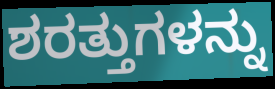
ಶರತ್ತುಗಳನ್ನು